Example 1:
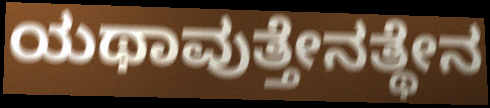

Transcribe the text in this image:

ಯಥಾವುತ್ತೇನತ್ಥೇನ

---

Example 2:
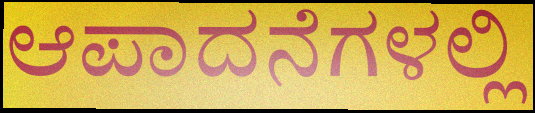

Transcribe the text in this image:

ಆಪಾದನೆಗಳಲ್ಲಿ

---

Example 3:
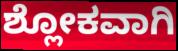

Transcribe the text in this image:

ಶ್ಲೋಕವಾಗಿ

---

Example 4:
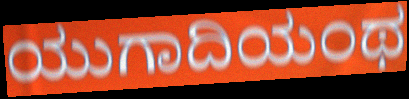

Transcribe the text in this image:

ಯುಗಾದಿಯಂಥ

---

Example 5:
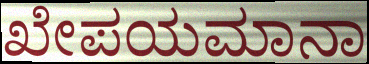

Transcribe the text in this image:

ಖೇಪಯಮಾನಾ